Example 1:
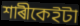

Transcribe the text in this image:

শাৰীকেইটা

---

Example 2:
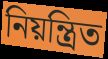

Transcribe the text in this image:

নিয়ন্ত্ৰিত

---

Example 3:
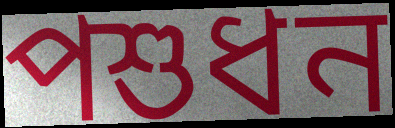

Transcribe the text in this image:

পশুধন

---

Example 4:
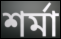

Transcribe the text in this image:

শৰ্মা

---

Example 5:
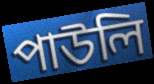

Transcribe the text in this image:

পাউলি